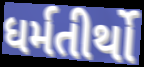
ધર્મતીર્થો